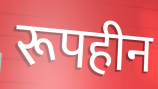
रूपहीन